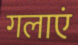
गलाएं